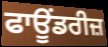
ਫਾਊਂਡਰੀਜ਼